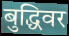
बुद्धिवर